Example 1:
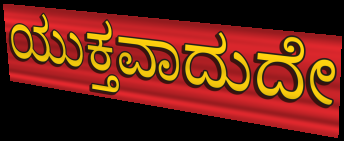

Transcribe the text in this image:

ಯುಕ್ತವಾದುದೇ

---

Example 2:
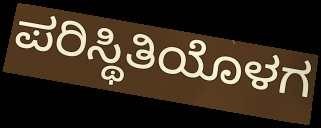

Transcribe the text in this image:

ಪರಿಸ್ಥಿತಿಯೊಳಗ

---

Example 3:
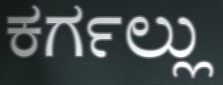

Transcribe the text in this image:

ಕರ್ಗಲ್ಲು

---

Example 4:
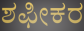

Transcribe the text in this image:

ಶಫೀಕರ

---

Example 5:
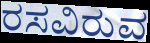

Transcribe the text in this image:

ರಸವಿರುವ